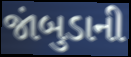
જાંબુડાની